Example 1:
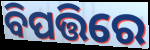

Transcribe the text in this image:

ବିପତ୍ତିରେ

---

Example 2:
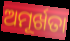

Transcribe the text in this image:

ଅମୂର୍ଖତା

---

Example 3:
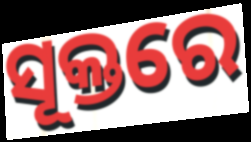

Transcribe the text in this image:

ସୂକ୍ତରେ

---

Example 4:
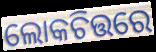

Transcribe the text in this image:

ଲୋକଚିତ୍ତରେ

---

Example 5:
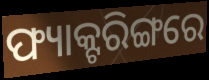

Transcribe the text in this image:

ଫ୍ୟାକ୍ଟରିଙ୍ଗରେ